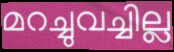
മറച്ചുവച്ചില്ല